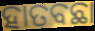
ହାତବଛା